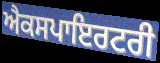
ਐਕਸਪਾਇਰਟਰੀ